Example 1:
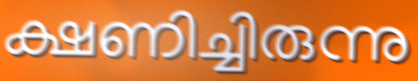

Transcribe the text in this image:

ക്ഷണിച്ചിരുന്നു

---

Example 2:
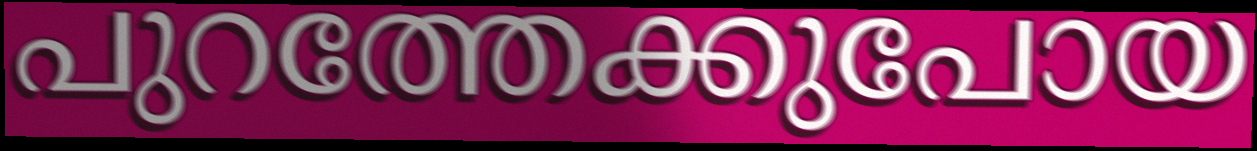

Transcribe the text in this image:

പുറത്തേക്കുപോയ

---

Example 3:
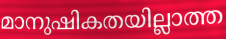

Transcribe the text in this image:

മാനുഷികതയില്ലാത്ത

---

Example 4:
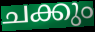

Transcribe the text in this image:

ചക്കും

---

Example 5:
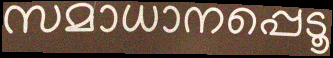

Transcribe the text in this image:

സമാധാനപ്പെടൂ